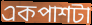
একপাশটা